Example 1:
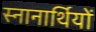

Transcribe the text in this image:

स्नानार्थियों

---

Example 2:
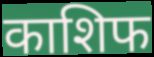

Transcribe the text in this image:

काशिफ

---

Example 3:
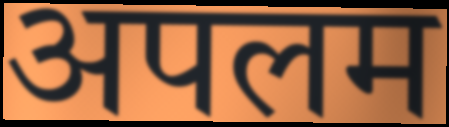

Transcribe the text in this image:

अपलम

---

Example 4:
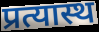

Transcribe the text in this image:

प्रत्यास्थ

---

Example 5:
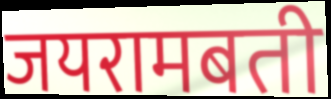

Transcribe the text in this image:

जयरामबती